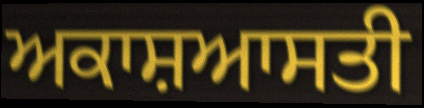
ਅਕਾਸ਼ਆਸਤੀ